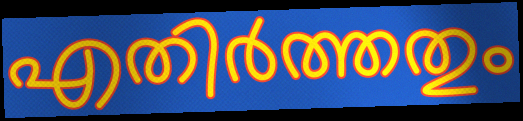
എതിർത്തതും